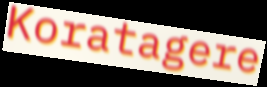
Koratagere